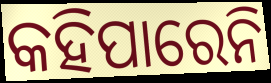
କହିପାରେନି